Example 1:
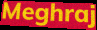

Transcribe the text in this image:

Meghraj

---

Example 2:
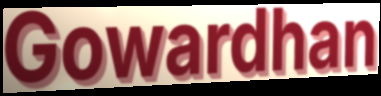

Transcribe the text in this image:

Gowardhan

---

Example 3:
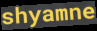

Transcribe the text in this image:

shyamne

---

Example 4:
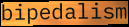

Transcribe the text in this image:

bipedalism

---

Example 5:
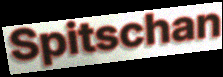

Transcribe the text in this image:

Spitschan